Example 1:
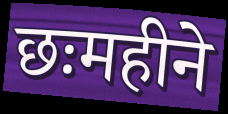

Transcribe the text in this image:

छःमहीने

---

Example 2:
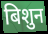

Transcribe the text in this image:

बिशुन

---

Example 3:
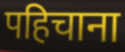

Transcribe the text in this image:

पहिचाना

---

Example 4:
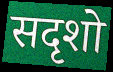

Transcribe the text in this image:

सदृशो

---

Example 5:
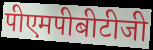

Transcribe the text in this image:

पीएमपीबीटीजी